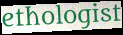
ethologist